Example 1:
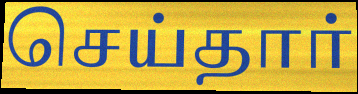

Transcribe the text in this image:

செய்தார்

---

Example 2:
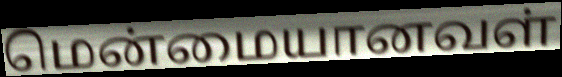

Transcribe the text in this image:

மென்மையானவள்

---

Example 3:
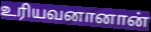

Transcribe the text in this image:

உரியவனானான்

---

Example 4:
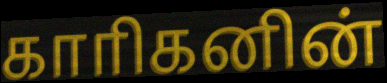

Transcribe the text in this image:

காரிகனின்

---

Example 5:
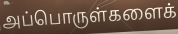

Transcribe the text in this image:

அப்பொருள்களைக்